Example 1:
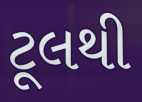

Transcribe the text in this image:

ટૂલથી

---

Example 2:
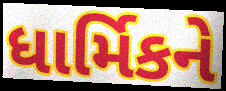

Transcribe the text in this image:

ધાર્મિકને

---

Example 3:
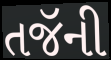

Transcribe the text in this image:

તજૅની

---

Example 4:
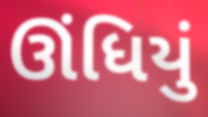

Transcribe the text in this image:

ઊંધિયું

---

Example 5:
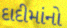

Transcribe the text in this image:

દાદીમાંનો